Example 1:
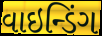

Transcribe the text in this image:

વાઇન્ડિંગ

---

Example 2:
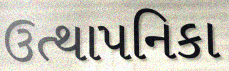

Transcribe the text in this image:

ઉત્થાપનિકા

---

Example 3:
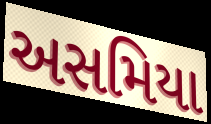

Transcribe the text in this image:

અસમિયા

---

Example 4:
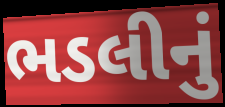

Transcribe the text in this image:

ભડલીનું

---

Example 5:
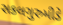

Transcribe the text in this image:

સકલગુરુમીડે